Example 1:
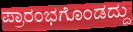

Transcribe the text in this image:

ಪ್ರಾರಂಭಗೊಂಡದ್ದು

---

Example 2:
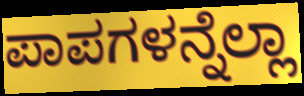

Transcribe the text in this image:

ಪಾಪಗಳನ್ನೆಲ್ಲಾ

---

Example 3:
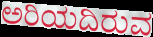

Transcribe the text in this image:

ಅರಿಯದಿರುವ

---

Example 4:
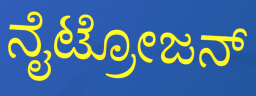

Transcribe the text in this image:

ನೈಟ್ರೋಜನ್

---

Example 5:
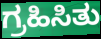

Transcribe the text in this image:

ಗ್ರಹಿಸಿತು